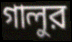
গালুর